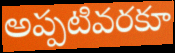
అప్పటివరకూ